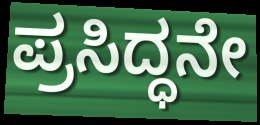
ಪ್ರಸಿದ್ಧನೇ